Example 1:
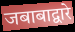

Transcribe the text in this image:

जबाबाद्वारे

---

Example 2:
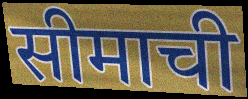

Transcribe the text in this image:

सीमाची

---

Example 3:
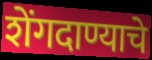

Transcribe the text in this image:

शेंगदाण्याचे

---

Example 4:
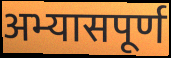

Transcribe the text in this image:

अभ्यासपूर्ण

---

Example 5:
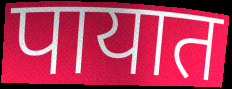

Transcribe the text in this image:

पायात